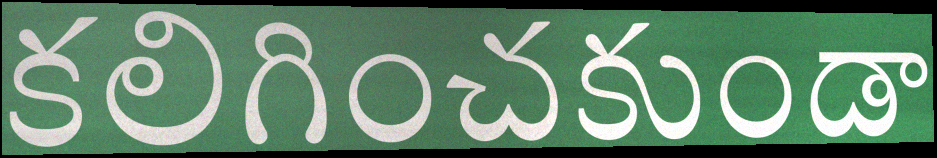
కలిగించకుండా